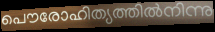
പൌരോഹിത്യത്തിൽനിന്നു